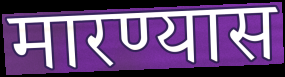
मारण्यास